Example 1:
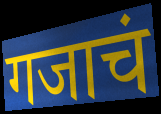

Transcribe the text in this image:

गजाचं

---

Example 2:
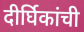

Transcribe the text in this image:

दीर्घिकांची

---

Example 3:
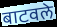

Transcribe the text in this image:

बाटवले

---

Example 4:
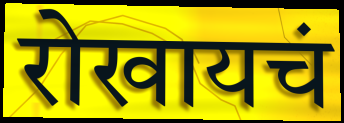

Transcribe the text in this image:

रोखायचं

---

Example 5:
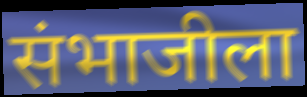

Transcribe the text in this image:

संभाजीला